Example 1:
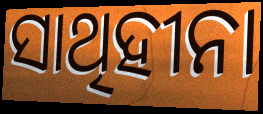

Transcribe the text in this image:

ସାଥିହୀନା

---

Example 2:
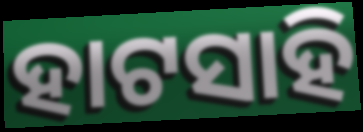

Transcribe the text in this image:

ହାଟସାହି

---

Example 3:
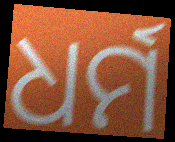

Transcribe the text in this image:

ଧର୍ମ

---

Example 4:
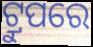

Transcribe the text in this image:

ଟ୍ରୁପରେ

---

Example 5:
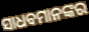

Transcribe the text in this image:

ସାଧବମାନଙ୍କର